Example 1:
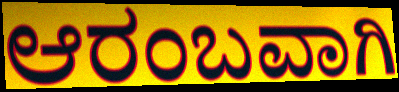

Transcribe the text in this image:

ಆರಂಬವಾಗಿ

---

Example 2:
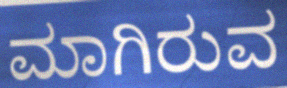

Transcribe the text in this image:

ಮಾಗಿರುವ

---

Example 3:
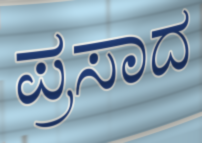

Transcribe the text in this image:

ಪ್ರಸಾದ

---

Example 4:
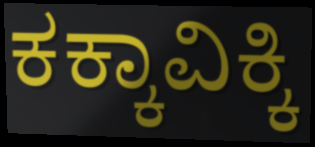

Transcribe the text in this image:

ಕಕ್ಕಾವಿಕ್ಕಿ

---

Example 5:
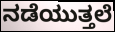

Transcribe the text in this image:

ನಡೆಯುತ್ತಲೆ